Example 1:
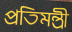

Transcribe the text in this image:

প্রতিমন্ত্রী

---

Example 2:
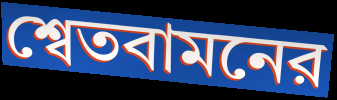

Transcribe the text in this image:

শ্বেতবামনের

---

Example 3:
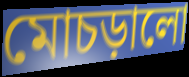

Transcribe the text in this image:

মোচড়ালো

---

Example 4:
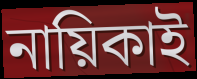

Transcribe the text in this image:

নায়িকাই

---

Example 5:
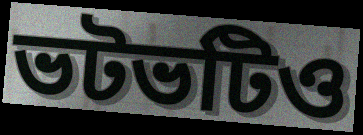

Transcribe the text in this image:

ভটভটিও